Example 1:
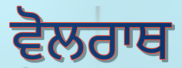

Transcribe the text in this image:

ਵੋਲਰਾਥ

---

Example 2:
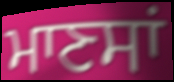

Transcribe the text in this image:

ਮਾਣਸਾਂ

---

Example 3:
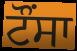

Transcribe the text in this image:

ਟੌਂਸਾ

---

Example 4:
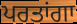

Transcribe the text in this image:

ਪਰਤਾਂਗਾ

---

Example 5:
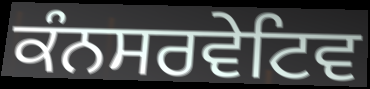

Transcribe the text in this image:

ਕੰਨਸਰਵੇਟਿਵ